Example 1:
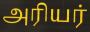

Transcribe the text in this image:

அரியர்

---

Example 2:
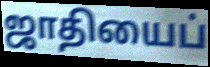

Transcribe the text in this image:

ஜாதியைப்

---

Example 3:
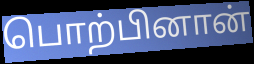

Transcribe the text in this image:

பொற்பினான்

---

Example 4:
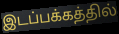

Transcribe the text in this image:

இடப்பக்கத்தில்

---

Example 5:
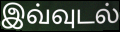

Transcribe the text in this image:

இவ்வுடல்